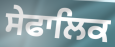
ਸੇਫਾਲਿਕ